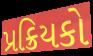
પ્રક્રિયકો